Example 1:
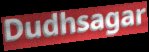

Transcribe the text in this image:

Dudhsagar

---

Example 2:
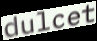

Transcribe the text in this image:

dulcet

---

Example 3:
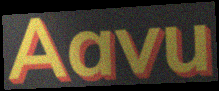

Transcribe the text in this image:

Aavu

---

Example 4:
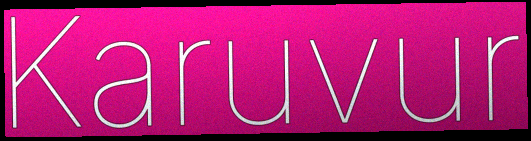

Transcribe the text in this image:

Karuvur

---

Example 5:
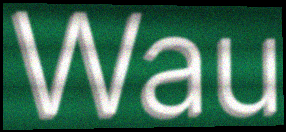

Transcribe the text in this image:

Wau